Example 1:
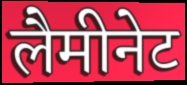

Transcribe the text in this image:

लैमीनेट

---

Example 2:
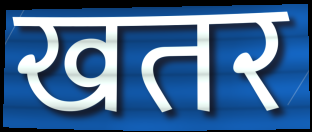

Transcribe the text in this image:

खतर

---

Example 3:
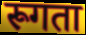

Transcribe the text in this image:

रूगता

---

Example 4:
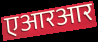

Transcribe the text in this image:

एआरआर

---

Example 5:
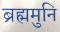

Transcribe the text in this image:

ब्रह्ममुनि